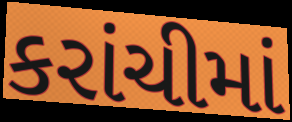
કરાંચીમાં